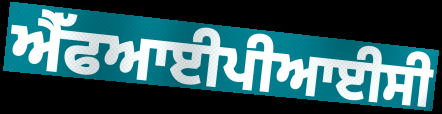
ਐੱਫਆਈਪੀਆਈਸੀ